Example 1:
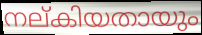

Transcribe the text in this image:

നല്കിയതായും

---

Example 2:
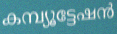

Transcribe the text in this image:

കമ്പ്യൂട്ടേഷൻ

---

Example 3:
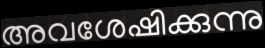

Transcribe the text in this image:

അവശേഷിക്കുന്നു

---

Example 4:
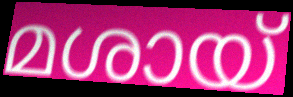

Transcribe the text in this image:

മശായ്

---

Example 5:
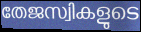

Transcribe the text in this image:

തേജസ്വികളുടെ